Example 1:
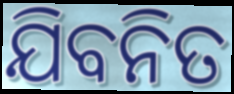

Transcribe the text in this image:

ଯିବନିତ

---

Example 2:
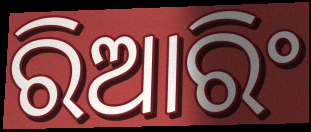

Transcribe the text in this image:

ରିଆରିଂ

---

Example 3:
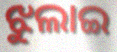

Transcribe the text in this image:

ଝୁଲାଇ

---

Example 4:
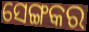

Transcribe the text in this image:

ସେଙ୍ଗକର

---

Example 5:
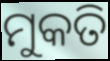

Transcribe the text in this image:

ମୁକତି